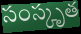
సంస్కృత